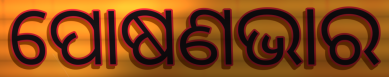
ପୋଷଣଭାର